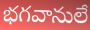
భగవానులే